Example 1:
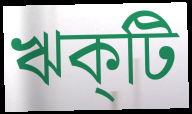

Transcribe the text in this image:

ঋক্‌টি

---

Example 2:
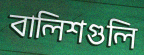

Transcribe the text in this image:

বালিশগুলি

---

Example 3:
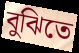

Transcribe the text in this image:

বুঝিতে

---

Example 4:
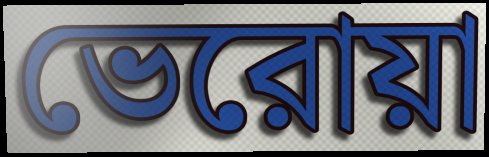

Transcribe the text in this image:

ভেরোয়া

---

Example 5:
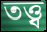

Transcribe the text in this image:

তত্ত্ব